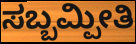
ಸಬ್ಬಮ್ಪೀತಿ